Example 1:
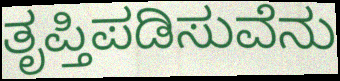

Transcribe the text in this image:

ತೃಪ್ತಿಪಡಿಸುವೆನು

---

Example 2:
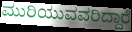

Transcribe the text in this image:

ಮುರಿಯುವವರಿದ್ದಾರೆ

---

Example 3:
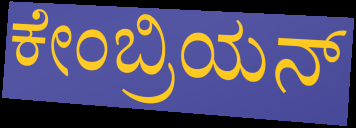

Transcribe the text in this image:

ಕೇಂಬ್ರಿಯನ್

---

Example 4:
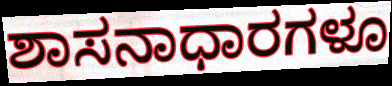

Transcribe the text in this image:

ಶಾಸನಾಧಾರಗಳೂ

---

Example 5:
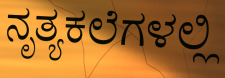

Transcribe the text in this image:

ನೃತ್ಯಕಲೆಗಳಲ್ಲಿ